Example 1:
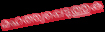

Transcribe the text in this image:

മഹത്ത്വപ്പെടുത്തുക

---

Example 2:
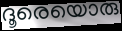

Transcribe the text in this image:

ദൂരെയൊരു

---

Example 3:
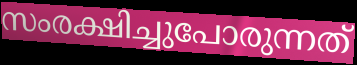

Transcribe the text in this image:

സംരക്ഷിച്ചുപോരുന്നത്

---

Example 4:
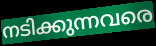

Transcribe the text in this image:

നടിക്കുന്നവരെ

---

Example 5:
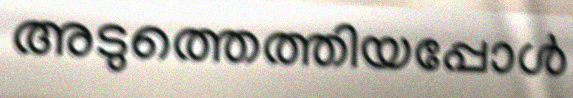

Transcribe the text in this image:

അടുത്തെത്തിയപ്പോൾ